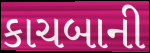
કાચબાની